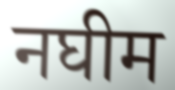
नघीम